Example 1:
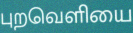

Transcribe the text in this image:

புறவெளியை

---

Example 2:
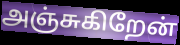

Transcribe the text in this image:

அஞ்சுகிறேன்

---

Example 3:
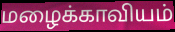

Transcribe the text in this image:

மழைக்காவியம்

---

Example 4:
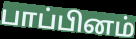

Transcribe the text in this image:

பாப்பினம்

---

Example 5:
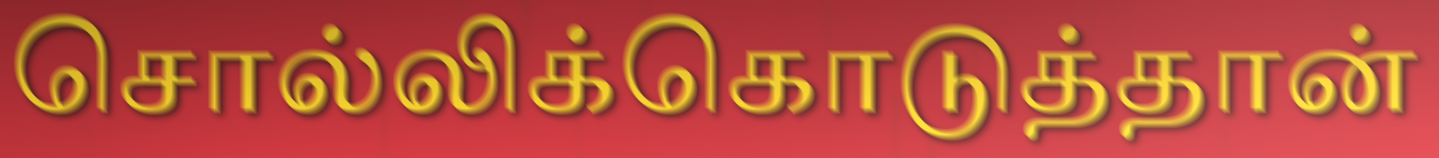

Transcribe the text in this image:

சொல்லிக்கொடுத்தான்